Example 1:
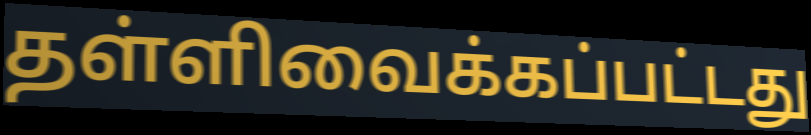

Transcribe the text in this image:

தள்ளிவைக்கப்பட்டது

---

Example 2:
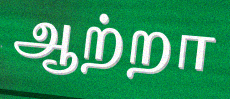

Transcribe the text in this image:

ஆற்றா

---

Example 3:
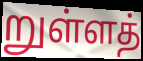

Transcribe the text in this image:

றுள்ளத்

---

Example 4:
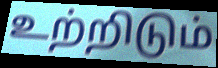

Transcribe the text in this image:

உற்றிடும்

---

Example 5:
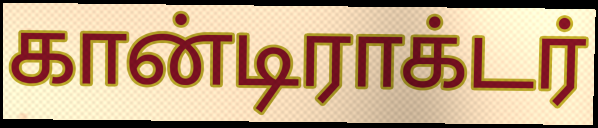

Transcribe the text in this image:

கான்டிராக்டர்